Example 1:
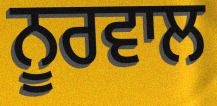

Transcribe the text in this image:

ਨੂਰਵਾਲ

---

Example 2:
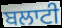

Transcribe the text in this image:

ਬਲਾਟੀ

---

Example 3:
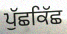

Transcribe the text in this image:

ਪੁੱਛਕਿੱਛ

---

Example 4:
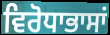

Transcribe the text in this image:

ਵਿਰੋਧਾਭਾਸਾਂ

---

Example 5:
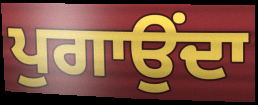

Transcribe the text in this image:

ਪੁਗਾਉਂਦਾ